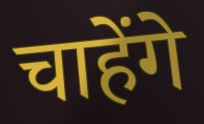
चाहेंगे